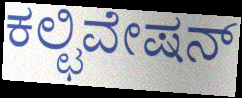
ಕಲ್ಟಿವೇಷನ್